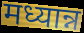
मध्यान्न